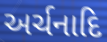
અર્ચનાદિ